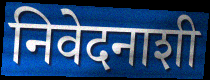
निवेदनाशी